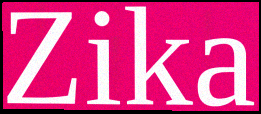
Zika